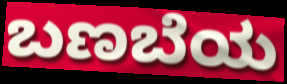
ಬಣಬೆಯ